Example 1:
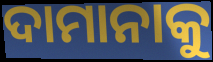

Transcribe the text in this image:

ଦାମାନାକୁ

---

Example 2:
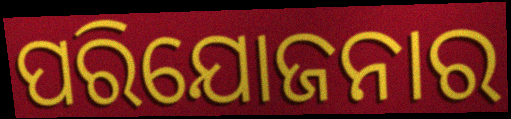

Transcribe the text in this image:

ପରିଯୋଜନାର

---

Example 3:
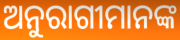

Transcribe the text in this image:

ଅନୁରାଗୀମାନଙ୍କ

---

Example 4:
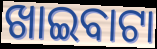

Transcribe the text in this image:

ଖାଇବାଟା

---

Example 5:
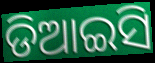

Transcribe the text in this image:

ଡିଆଇସି